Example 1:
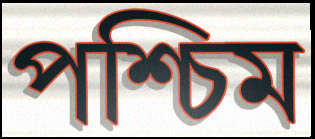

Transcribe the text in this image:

পশ্চিম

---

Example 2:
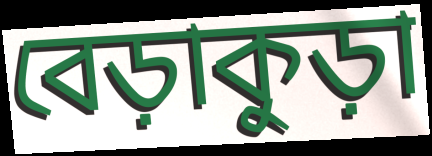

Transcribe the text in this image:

বেড়াকুড়া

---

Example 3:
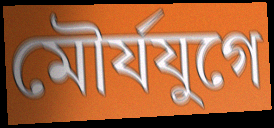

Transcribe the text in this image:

মৌর্যযুগে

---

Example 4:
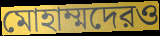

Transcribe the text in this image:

মোহাম্মদেরও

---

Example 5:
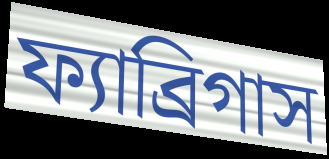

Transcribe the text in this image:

ফ্যাব্রিগাস